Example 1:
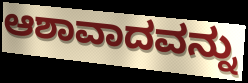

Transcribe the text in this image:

ಆಶಾವಾದವನ್ನು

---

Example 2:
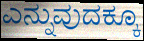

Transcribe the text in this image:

ಎನ್ನುವುದಕ್ಕೂ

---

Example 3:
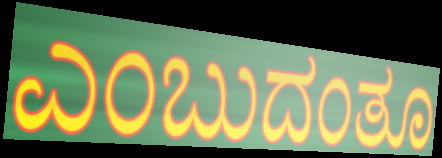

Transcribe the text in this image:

ಎಂಬುದಂತೂ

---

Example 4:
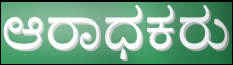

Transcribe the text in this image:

ಆರಾಧಕರು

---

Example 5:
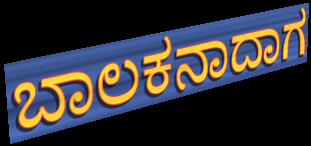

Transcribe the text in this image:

ಬಾಲಕನಾದಾಗ